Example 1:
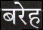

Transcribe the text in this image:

बरेह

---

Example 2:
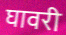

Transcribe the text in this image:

घावरी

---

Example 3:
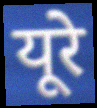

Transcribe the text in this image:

यूरे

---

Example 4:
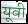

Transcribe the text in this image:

यूवी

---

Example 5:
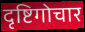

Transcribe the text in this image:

दृष्टिगोचार